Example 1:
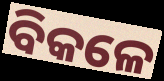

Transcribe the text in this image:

ବିକଳେ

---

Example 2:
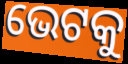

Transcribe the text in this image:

ଭେଟକୁ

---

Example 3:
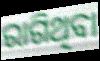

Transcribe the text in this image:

ରାଗିଥିବା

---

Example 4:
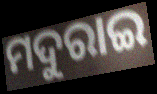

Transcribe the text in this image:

ମଦୁରାଇ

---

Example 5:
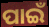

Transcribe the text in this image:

ପାଇଁ